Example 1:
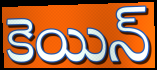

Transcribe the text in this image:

కెయిన్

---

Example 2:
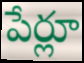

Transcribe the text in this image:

పేర్లూ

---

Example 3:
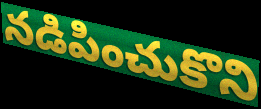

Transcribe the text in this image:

నడిపించుకొని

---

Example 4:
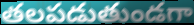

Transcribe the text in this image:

తలపడుతుండగా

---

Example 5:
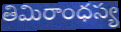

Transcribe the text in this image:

తిమిరాంధస్య